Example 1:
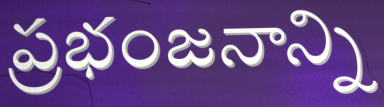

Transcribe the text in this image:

ప్రభంజనాన్ని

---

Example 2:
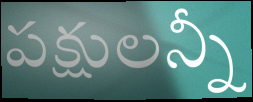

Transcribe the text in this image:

పక్షులన్నీ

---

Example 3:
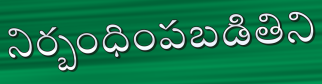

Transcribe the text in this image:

నిర్బంధింపబడితిని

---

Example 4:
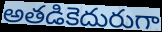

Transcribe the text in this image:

అతడికెదురుగా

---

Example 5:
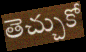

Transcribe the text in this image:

తెచ్చుకో